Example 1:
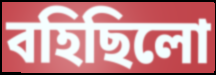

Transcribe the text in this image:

বহিছিলো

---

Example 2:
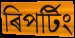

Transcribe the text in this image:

ৰিপৰ্টিং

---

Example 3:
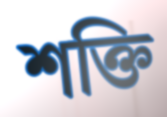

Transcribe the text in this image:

শক্তি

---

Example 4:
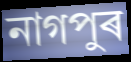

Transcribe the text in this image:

নাগপুৰ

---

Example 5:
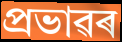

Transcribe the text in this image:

প্ৰভাৱৰ